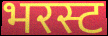
भरस्ट